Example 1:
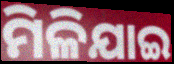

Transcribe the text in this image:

ମିଳିଯାଇ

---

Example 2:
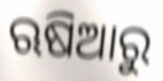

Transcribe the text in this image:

ଋଷିଆରୁ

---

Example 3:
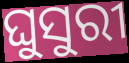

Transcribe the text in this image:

ଘୁସୁରୀ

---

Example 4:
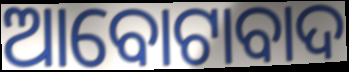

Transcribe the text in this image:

ଆବୋଟାବାଦ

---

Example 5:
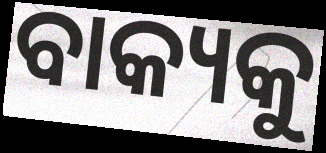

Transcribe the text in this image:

ବାକ୍ୟକୁ